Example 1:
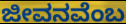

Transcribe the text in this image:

ಜೀವನವೆಂಬ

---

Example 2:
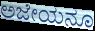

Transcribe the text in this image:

ಅಜೇಯನೂ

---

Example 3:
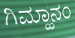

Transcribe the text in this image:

ಗಿಮ್ಹಾನಂ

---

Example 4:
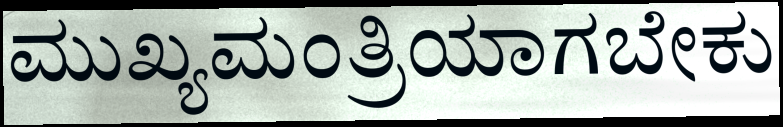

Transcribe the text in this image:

ಮುಖ್ಯಮಂತ್ರಿಯಾಗಬೇಕು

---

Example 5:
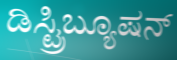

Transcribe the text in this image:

ಡಿಸ್ಟ್ರಿಬ್ಯೂಷನ್